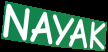
NAYAK